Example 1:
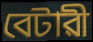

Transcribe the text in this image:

বেটাৱী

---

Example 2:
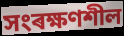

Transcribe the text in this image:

সংৰক্ষণশীল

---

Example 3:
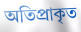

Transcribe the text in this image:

অতিপ্ৰাকৃত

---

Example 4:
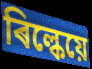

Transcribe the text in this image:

ৰিল্কেয়ে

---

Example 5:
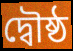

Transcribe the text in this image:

দ্বৌষ্ঠ